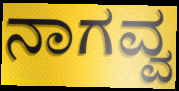
ನಾಗವ್ವ